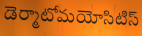
డెర్మాటోమయోసిటిస్